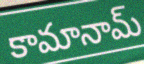
కామానామ్